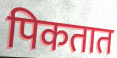
पिकतात